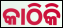
କାଠିକି